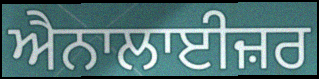
ਐਨਾਲਾਈਜ਼ਰ